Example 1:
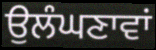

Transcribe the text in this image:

ਉਲੰਘਣਾਵਾਂ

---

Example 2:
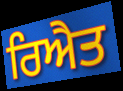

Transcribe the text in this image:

ਰਿਐਤ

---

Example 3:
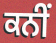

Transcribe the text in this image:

ਕਨੀਂ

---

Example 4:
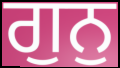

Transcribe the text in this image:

ਗੁਨੁ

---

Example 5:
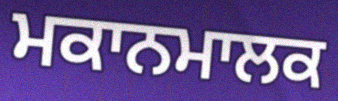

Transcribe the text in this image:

ਮਕਾਨਮਾਲਕ